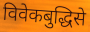
विवेकबुद्धिसे